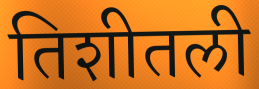
तिशीतली